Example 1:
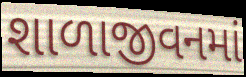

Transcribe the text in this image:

શાળાજીવનમાં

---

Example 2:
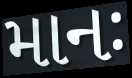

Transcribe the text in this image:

માનઃ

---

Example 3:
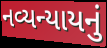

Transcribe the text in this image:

નવ્યન્યાયનું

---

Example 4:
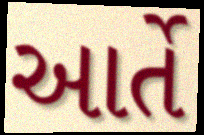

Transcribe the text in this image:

આર્તે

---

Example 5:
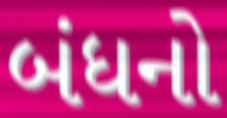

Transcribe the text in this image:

બંધનો